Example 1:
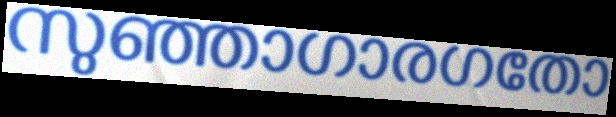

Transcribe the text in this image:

സുഞ്ഞാഗാരഗതോ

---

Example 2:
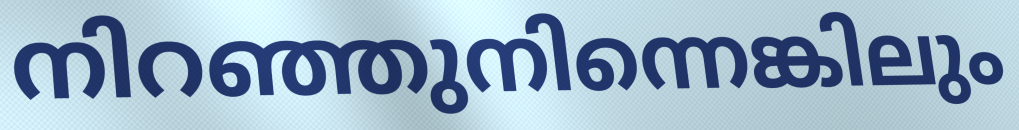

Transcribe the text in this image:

നിറഞ്ഞുനിന്നെങ്കിലും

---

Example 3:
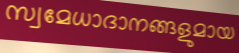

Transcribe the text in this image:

സ്വമേധാദാനങ്ങളുമായ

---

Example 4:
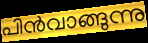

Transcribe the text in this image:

പിൻവാങ്ങുന്നു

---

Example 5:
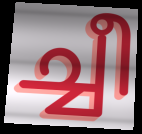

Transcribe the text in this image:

ച്ചീ